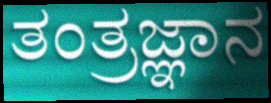
ತಂತ್ರಜ್ಞಾನ